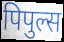
पिपुल्स